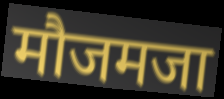
मौजमजा